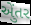
એુંતર